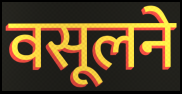
वसूलने